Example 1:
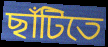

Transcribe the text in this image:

ছাঁটিতে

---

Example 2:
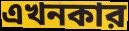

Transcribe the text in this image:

এখনকার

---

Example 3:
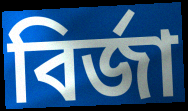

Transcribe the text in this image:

বির্জা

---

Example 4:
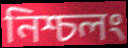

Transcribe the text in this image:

নিশ্চলং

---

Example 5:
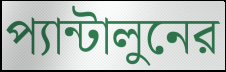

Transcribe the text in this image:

প্যান্টালুনের